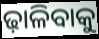
ଢ଼ାଳିବାକୁ